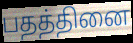
பதத்தினை